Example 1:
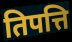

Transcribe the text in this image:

तिपत्ति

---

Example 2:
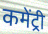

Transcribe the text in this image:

कमेंट्री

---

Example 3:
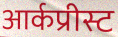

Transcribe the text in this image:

आर्कप्रीस्ट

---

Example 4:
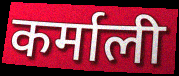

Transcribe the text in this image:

कर्माली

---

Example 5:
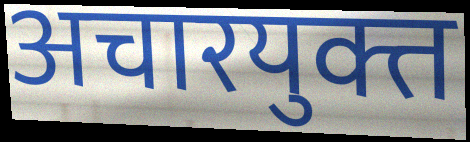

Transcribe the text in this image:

अचारयुक्त